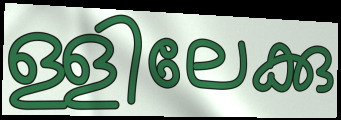
ള്ളിലേക്കു